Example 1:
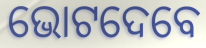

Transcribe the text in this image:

ଭୋଟଦେବେ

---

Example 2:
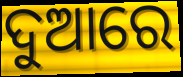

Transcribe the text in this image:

ଦୁଆରେ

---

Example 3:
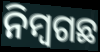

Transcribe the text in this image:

ନିମ୍ୱଗଛ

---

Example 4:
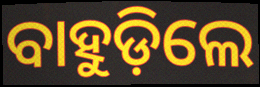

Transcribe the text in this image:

ବାହୁଡ଼ିଲେ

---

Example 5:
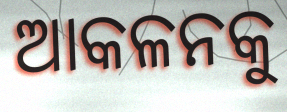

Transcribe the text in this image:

ଆକଳନକୁ